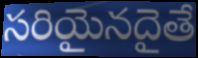
సరియైనదైతే